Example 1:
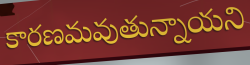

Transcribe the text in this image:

కారణమవుతున్నాయని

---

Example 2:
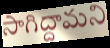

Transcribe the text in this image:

సాగిద్దామని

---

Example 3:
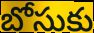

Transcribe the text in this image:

బోసుకు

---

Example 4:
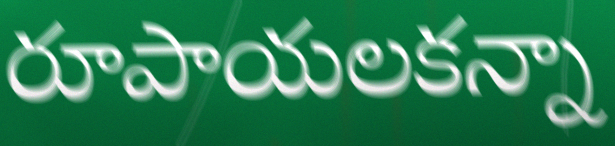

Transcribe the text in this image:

రూపాయలకన్నా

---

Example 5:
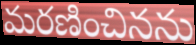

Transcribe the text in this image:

మరణించినను